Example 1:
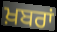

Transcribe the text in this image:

ਖ਼ਬਰਾਂ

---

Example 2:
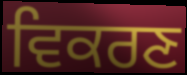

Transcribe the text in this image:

ਵਿਕਰਣ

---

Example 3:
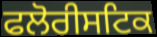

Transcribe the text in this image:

ਫਲੋਰੀਸਟਿਕ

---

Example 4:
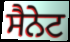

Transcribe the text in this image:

ਸੈਨੇਟ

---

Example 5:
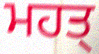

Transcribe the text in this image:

ਮਹਤ੍